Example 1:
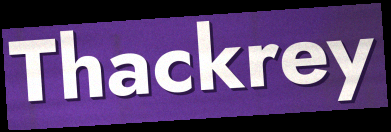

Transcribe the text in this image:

Thackrey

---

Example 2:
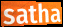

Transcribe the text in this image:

satha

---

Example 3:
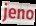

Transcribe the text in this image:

jeno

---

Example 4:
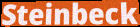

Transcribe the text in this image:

Steinbeck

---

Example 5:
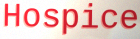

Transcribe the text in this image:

Hospice